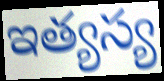
ఇత్యస్య